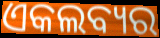
ଏକଲବ୍ୟର